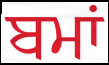
ਬਮਾਂ